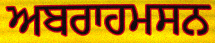
ਅਬਰਾਹਮਸਨ